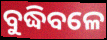
ବୁଦ୍ଧିବଳେ